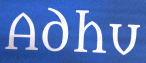
Adhu